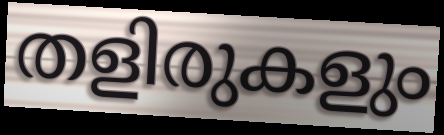
തളിരുകളും